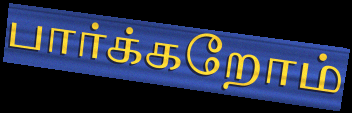
பார்க்கறோம்